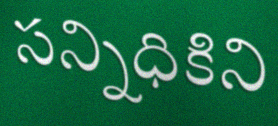
సన్నిధికిని